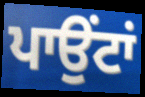
ਪਾਉਂਟਾਂ